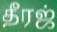
தீரஜ்